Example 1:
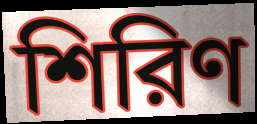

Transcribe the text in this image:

শিরিণ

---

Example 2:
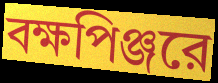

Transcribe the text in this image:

বক্ষপিঞ্জরে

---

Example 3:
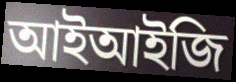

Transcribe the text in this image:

আইআইজি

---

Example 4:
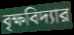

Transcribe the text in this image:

বৃক্ষবিদ্যার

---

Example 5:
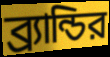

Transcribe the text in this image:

ব্র্যান্ডির